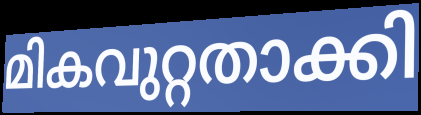
മികവുറ്റതാക്കി